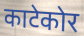
काटेकोर